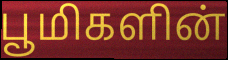
பூமிகளின்